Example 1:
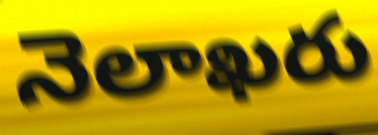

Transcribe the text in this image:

నెలాఖరు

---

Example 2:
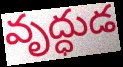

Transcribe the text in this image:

వృద్ధుడ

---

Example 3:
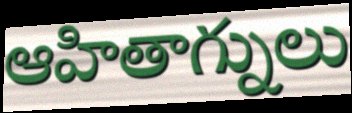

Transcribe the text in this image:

ఆహితాగ్నులు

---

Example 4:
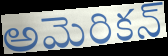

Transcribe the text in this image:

అమెరికన్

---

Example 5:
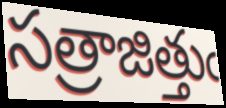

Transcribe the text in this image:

సత్రాజిత్తుఁ